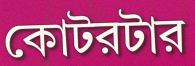
কোটরটার